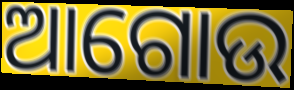
ଆଗୋଉ